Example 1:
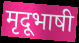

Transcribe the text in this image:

मृदूभाषी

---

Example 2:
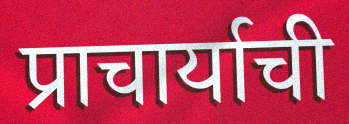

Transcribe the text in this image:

प्राचार्याची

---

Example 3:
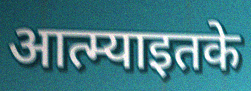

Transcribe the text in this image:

आत्म्याइतके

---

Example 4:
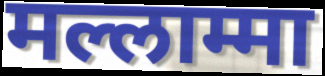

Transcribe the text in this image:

मल्लाम्मा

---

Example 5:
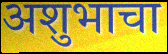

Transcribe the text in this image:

अशुभाचा